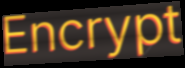
Encrypt